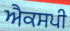
ਐਕਸਪੀ